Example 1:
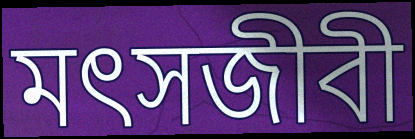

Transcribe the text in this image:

মৎসজীবী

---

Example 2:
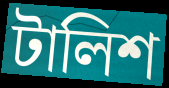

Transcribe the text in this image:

টালিশ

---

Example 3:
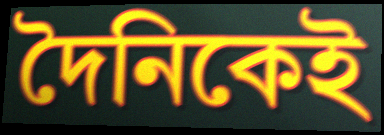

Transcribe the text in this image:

দৈনিকেই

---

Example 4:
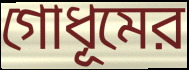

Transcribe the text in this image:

গোধূমের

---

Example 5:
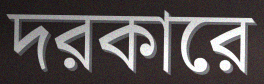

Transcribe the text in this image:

দরকারে